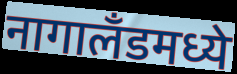
नागालॅंडमध्ये